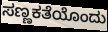
ಸಣ್ಣಕತೆಯೊಂದು